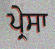
ਪ੍ਰੇਸਾ